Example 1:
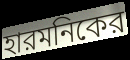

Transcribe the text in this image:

হারমনিকের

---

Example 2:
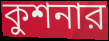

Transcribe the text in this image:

কুশনার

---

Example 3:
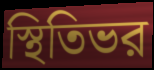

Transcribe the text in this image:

স্থিতিভর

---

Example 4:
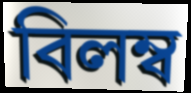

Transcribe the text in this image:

বিলম্ব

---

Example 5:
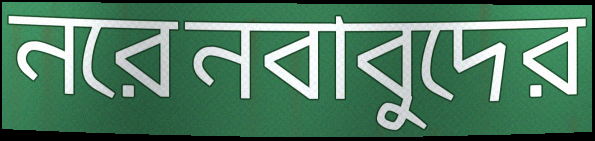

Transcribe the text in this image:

নরেনবাবুদের